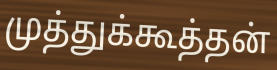
முத்துக்கூத்தன்